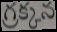
గ్రక్కన